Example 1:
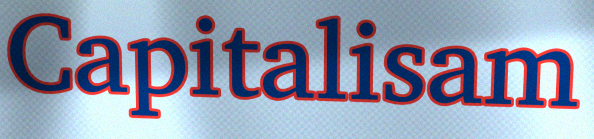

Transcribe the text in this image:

Capitalisam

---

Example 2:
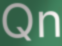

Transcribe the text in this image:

Qn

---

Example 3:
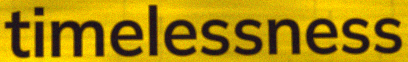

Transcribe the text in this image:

timelessness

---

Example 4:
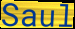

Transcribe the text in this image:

Saul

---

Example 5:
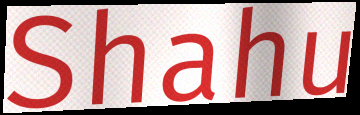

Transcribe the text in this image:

Shahu